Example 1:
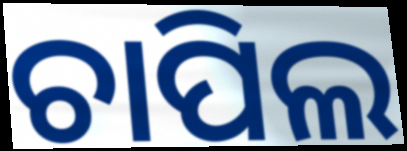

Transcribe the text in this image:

ଚାପିଲ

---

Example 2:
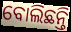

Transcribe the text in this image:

ବୋଲିଛନ୍ତି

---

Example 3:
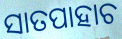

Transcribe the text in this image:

ସାତପାହାଚ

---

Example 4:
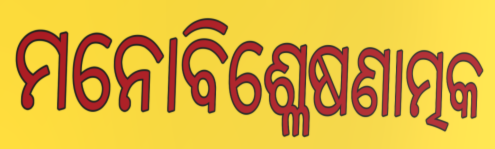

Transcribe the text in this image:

ମନୋବିଶ୍ଳେଷଣାତ୍ମକ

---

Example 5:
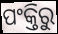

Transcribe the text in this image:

ପଂକ୍ତିରୁ